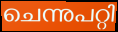
ചെന്നുപറ്റി